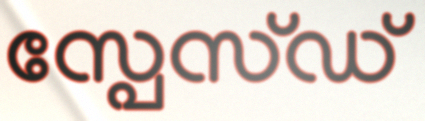
സ്പേസ്ഡ്